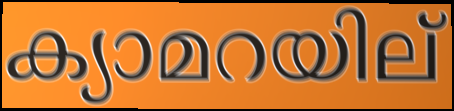
ക്യാമറയില്